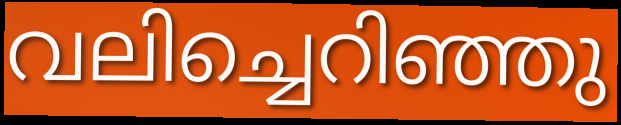
വലിച്ചെറിഞ്ഞു